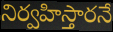
నిర్వహిస్తారనే